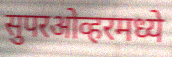
सुपरओव्हरमध्ये